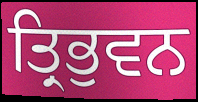
ਤ੍ਰਿਭੁਵਨ